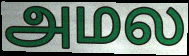
அமல